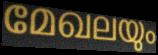
മേഖലയും